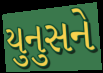
યુનુસને